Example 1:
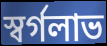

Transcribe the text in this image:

স্বর্গলাভ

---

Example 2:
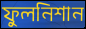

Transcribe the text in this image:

ফুলনিশান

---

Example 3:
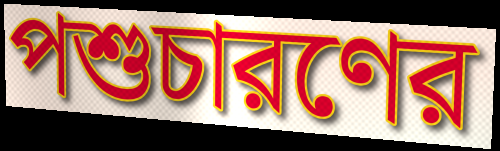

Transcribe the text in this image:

পশুচারণের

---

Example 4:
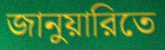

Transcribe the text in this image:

জানুয়ারিতে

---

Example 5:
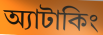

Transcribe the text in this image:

অ্যাটাকিং